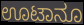
ಊಟಾನೂ